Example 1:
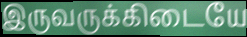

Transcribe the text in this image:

இருவருக்கிடையே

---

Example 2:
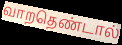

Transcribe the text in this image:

வாறதெண்டால்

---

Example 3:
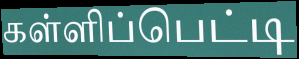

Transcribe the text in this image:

கள்ளிப்பெட்டி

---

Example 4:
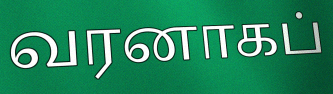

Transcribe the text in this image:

வரனாகப்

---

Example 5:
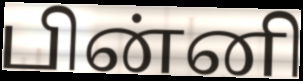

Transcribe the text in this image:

பின்னி